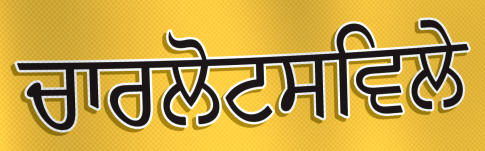
ਚਾਰਲੋਟਸਵਿਲੇ